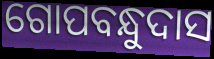
ଗୋପବନ୍ଧୁଦାସ